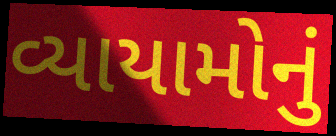
વ્યાયામોનું